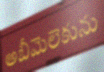
అబీమెలెకును